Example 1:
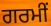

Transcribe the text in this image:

ਗਰਮੀਂ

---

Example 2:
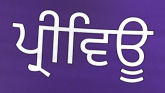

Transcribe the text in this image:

ਪ੍ਰੀਵਿਊ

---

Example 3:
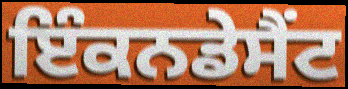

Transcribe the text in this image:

ਇੰਕਨਡੇਸੈਂਟ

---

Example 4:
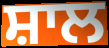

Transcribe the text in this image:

ਸ਼ਾਲ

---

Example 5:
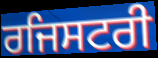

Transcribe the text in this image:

ਰਜਿਸਟਰੀ